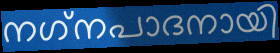
നഗ്‌നപാദനായി